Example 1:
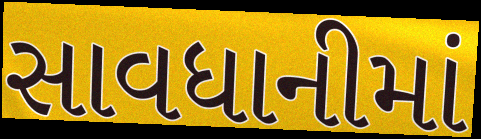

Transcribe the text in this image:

સાવધાનીમાં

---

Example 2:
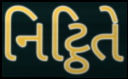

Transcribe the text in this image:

નિટ્ઠિતે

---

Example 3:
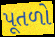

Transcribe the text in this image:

પૂતળો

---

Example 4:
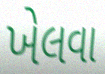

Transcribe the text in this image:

ખેલવા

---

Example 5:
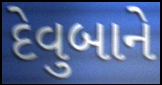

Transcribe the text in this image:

દેવુબાને